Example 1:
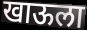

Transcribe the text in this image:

खाऊला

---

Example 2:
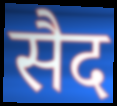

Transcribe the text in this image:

सैद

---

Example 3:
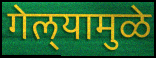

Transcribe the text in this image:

गेल्यामुळे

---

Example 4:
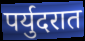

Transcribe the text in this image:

पर्युदरात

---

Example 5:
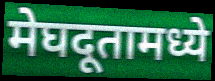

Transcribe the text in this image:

मेघदूतामध्ये